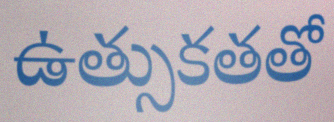
ఉత్సుకతతో